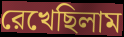
রেখেছিলাম